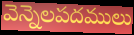
వెన్నెలపదములు